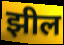
झील